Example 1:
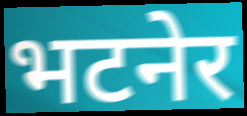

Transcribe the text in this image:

भटनेर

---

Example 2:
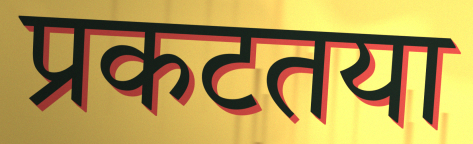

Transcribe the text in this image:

प्रकटतया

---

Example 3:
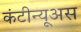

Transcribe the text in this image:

कंटीन्यूअस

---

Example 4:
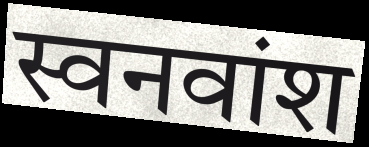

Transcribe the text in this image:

स्वनवांश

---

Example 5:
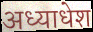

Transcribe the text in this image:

अध्याधेश